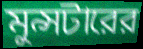
মুন্সটারের